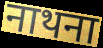
नाथना